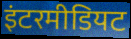
इंटरमीडियट